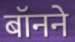
बॉनने